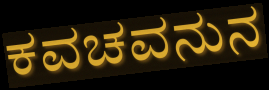
ಕವಚವನುನ